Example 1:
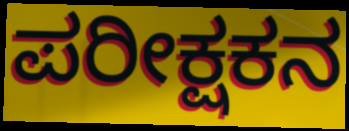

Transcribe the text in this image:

ಪರೀಕ್ಷಕನ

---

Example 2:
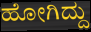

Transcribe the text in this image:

ಹೋಗಿದ್ದು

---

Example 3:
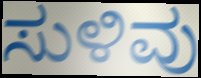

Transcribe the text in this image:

ಸುಳಿವು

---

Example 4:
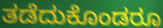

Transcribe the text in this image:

ತಡೆದುಕೊಂಡರೂ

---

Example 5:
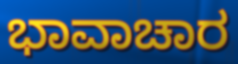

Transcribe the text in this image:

ಭಾವಾಚಾರ